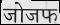
जोजफ